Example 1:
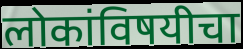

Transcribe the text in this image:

लोकांविषयीचा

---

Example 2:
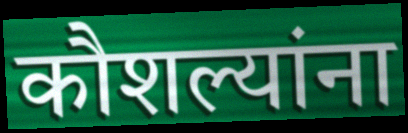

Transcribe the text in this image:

कौशल्यांना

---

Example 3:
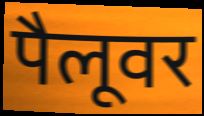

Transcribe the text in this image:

पैलूवर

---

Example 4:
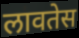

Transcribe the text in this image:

लावतेस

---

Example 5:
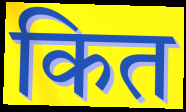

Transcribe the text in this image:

कित